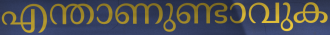
എന്താണുണ്ടാവുക